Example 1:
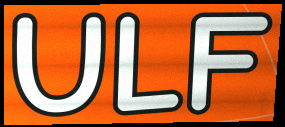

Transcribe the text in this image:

ULF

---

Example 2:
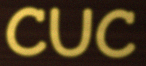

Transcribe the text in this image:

CUC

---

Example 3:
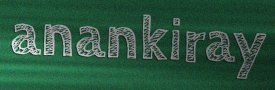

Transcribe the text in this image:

anankiray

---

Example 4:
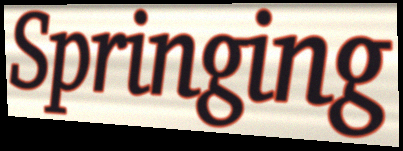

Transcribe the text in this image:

Springing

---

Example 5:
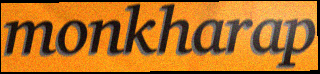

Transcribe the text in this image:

monkharap